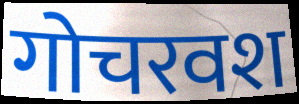
गोचरवश